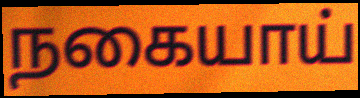
நகையாய்